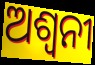
ଅଶ୍ଵନୀ